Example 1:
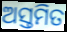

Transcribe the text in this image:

ଅସ୍ତମିତ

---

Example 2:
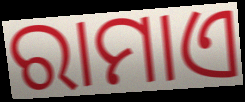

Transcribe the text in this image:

ରାମାଏ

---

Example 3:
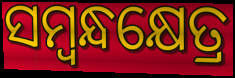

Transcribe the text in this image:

ସମ୍ବନ୍ଧକ୍ଷେତ୍ର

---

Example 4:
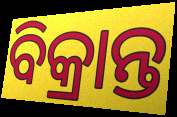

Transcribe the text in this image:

ବିକ୍ରାନ୍ତ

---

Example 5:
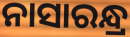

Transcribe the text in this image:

ନାସାରନ୍ଧ୍ର